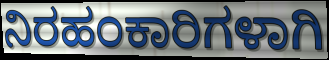
ನಿರಹಂಕಾರಿಗಳಾಗಿ